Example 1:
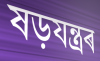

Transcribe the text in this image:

ষড়যন্ত্ৰৰ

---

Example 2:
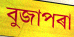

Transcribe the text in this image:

বুজাপৰা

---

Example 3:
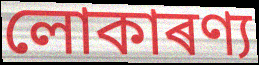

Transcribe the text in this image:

লোকাৰণ্য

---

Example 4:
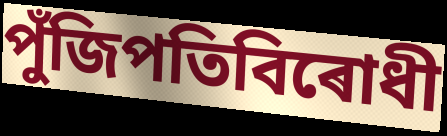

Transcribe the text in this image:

পুঁজিপতিবিৰোধী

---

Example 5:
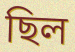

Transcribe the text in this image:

ছিল